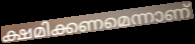
ക്ഷമിക്കണമെന്നാണ്